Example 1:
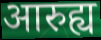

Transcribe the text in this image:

आरुह्य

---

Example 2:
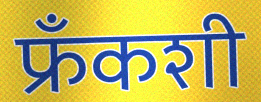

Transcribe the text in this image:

फ्रँकशी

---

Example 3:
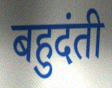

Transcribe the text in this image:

बहुदंती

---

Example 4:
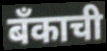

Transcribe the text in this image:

बँकाची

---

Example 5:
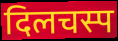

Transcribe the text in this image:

दिलचस्प